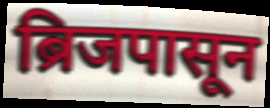
ब्रिजपासून